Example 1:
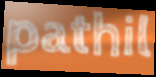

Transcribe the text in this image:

pathil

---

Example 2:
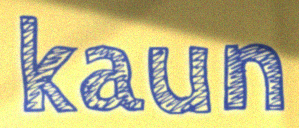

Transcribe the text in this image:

kaun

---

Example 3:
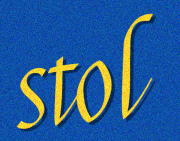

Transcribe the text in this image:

stol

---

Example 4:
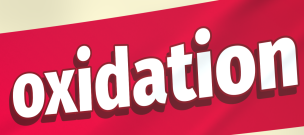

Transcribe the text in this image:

oxidation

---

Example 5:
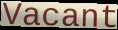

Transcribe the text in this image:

Vacant